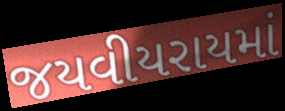
જયવીયરાયમાં